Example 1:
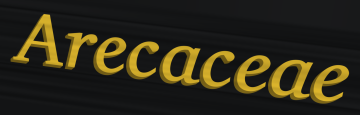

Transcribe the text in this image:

Arecaceae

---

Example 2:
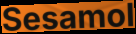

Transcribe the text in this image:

Sesamol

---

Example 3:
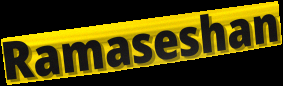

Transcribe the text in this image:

Ramaseshan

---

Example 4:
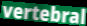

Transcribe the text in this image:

vertebral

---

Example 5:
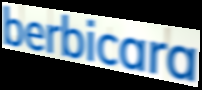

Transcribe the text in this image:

berbicara